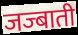
जज्‍बाती